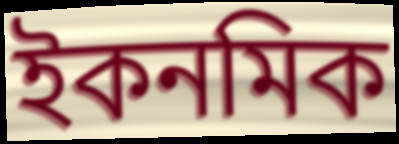
ইকনমিক